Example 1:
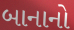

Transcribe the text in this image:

બાનાનો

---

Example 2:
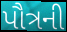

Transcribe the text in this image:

પૌત્રની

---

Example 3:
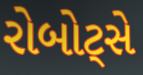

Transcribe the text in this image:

રોબોટ્સે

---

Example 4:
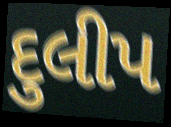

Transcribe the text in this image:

દુલીપ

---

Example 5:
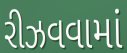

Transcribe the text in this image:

રીઝવવામાં